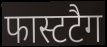
फास्टटैग